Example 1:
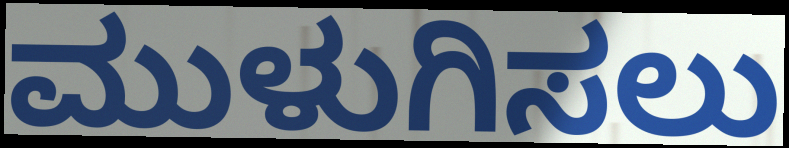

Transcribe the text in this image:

ಮುಳುಗಿಸಲು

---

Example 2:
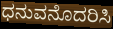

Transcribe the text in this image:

ಧನುವನೊದರಿಸಿ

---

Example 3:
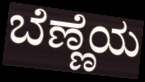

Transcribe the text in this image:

ಬೆಣ್ಣೆಯ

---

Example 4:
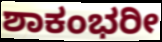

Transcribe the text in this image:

ಶಾಕಂಭರೀ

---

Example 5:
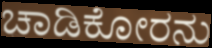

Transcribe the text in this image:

ಚಾಡಿಕೋರನು